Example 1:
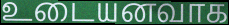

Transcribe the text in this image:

உடையனவாக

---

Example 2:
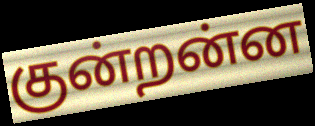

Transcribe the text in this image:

குன்றன்ன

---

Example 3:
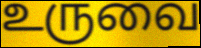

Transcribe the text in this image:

உருவை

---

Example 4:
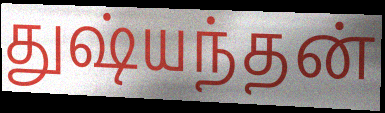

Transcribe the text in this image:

துஷ்யந்தன்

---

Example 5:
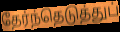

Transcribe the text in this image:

தேர்ந்தெடுத்துப்